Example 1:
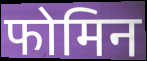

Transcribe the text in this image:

फोमिन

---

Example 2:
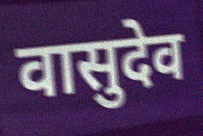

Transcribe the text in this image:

वासुदेव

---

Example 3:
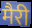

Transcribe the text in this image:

मैरी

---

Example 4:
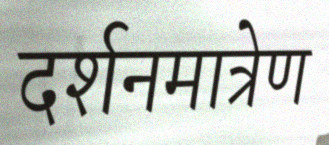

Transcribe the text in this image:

दर्शनमात्रेण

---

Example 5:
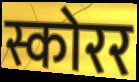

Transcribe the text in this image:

स्कोरर